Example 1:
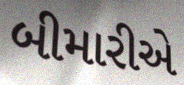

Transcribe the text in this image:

બીમારીએ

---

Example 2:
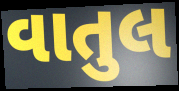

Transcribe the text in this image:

વાતુલ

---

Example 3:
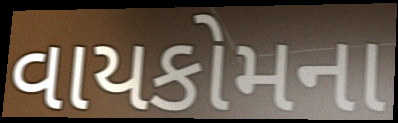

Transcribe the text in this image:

વાયકોમના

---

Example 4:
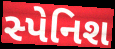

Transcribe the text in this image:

સ્પેનિશ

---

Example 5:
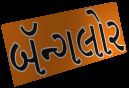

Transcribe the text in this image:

બૅન્ગલોર